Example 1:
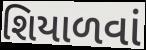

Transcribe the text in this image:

શિયાળવાં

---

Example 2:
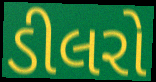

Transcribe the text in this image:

ડીલરો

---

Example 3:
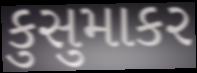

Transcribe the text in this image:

કુસુમાકર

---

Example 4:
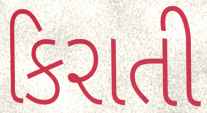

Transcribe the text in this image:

કિરાતી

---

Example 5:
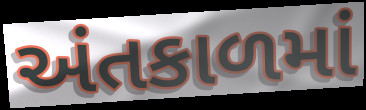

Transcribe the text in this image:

અંતકાળમાં